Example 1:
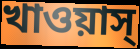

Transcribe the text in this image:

খাওয়াস্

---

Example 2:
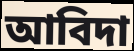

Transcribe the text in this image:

আবিদা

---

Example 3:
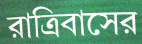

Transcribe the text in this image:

রাত্রিবাসের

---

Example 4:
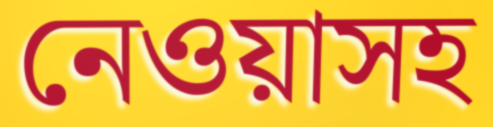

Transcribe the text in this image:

নেওয়াসহ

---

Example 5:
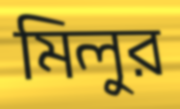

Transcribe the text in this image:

মিলুর